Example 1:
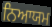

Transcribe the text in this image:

ਨਿਆਯਮ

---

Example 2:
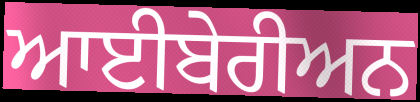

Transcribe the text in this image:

ਆਈਬੇਰੀਅਨ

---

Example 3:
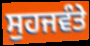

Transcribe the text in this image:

ਸੁਹਜਵੰਤੇ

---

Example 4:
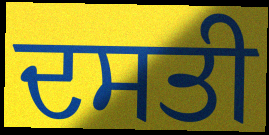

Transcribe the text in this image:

ਦਸਤੀ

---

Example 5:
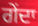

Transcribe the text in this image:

ਗੇਂਦਾ